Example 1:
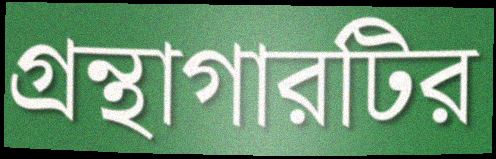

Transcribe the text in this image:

গ্রন্থাগারটির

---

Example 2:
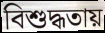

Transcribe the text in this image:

বিশুদ্ধতায়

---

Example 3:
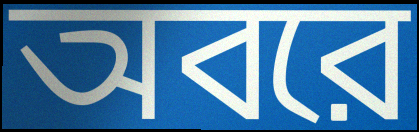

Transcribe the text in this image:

অবরে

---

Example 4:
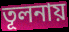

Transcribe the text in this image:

তূলনায়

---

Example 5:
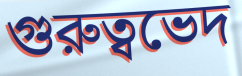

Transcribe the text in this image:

গুরুত্বভেদ